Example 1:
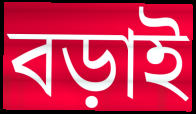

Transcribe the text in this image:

বড়াই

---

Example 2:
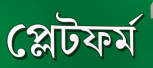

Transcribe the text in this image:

প্লেটফৰ্ম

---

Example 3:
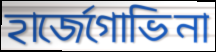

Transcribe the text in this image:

হাৰ্জেগোভিনা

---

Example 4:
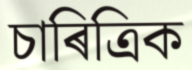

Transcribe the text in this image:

চাৰিত্ৰিক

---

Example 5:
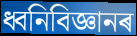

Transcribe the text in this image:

ধ্বনিবিজ্ঞানৰ